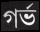
গর্ভ